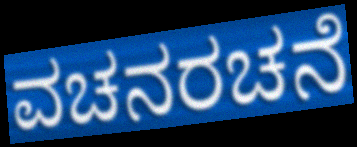
ವಚನರಚನೆ